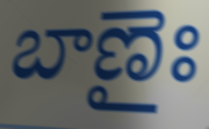
బాణైః